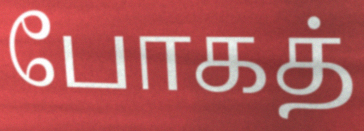
போகத்